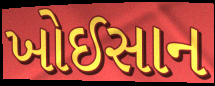
ખોઈસાન